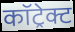
कॉट्रेक्ट